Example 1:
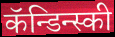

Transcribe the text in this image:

कॅन्डिन्स्की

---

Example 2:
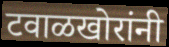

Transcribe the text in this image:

टवाळखोरांनी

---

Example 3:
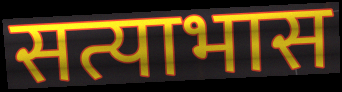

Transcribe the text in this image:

सत्याभास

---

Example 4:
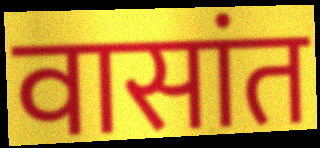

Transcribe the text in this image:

वासांत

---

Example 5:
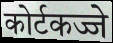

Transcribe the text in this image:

कोर्टकज्जे